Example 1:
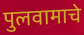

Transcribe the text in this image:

पुलवामाचे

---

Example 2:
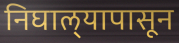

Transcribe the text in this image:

निघाल्यापासून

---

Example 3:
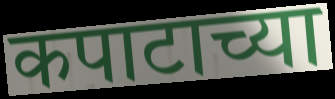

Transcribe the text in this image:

कपाटाच्या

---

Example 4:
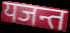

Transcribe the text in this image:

यजन्त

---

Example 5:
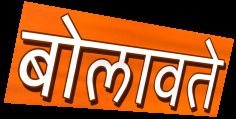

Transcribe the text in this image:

बोलावते